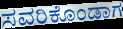
ಸವರಿಕೊಂಡಾಗ